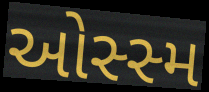
ઓસ્સ્મ